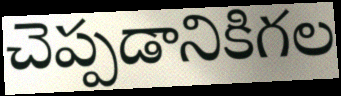
చెప్పడానికిగల